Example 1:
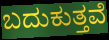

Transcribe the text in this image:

ಬದುಕುತ್ತವೆ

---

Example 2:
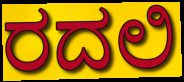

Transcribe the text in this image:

ರದಲಿ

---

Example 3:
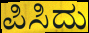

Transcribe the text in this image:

ಪಿಸಿದು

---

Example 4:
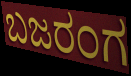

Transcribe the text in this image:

ಬಜರಂಗ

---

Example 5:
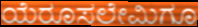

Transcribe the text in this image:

ಯೆರೂಸಲೇಮಿಗೂ